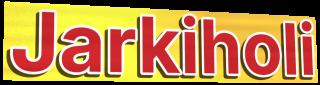
Jarkiholi